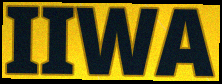
IIWA